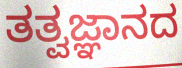
ತತ್ವಜ್ಞಾನದ